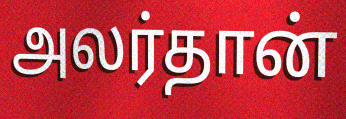
அலர்தான்